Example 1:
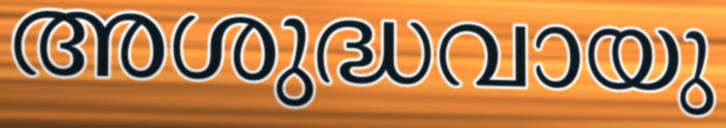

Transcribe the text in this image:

അശുദ്ധവായു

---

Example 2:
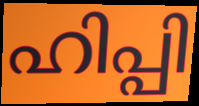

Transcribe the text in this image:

ഹിപ്പി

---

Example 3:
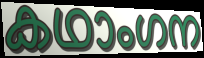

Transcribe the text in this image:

കഥാംഗന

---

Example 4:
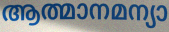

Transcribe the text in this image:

ആത്മാനമന്യാ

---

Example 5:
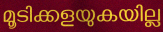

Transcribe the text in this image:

മൂടിക്കളയുകയില്ല